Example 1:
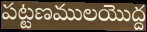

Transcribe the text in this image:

పట్టణములయొద్ద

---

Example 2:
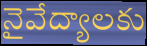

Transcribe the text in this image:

నైవేద్యాలకు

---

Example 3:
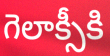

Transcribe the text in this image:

గెలాక్సీకి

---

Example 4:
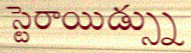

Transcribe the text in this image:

స్టెరాయిడ్స్ను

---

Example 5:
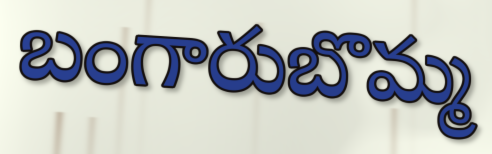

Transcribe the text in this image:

బంగారుబొమ్మ